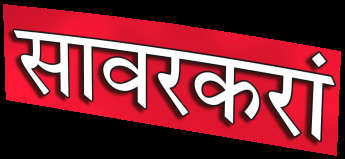
सावरकरां